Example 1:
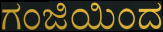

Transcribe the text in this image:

ಗಂಜಿಯಿಂದ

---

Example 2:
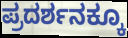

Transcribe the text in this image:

ಪ್ರದರ್ಶನಕ್ಕೂ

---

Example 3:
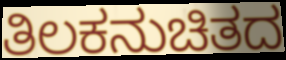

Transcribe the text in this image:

ತಿಲಕನುಚಿತದ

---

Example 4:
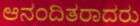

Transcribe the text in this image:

ಆನಂದಿತರಾದರು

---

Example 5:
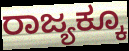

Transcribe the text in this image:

ರಾಜ್ಯಕ್ಕೂ